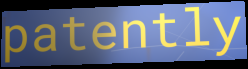
patently